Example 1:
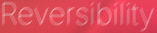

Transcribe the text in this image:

Reversibility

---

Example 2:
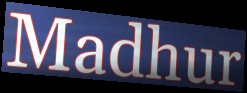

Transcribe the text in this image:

Madhur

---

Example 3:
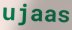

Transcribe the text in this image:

ujaas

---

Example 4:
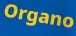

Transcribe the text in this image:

Organo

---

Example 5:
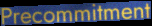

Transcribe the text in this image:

Precommitment